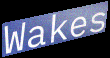
Wakes